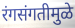
रंगसंगतीमुळे